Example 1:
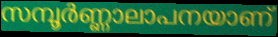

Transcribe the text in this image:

സമ്പൂർണ്ണാലാപനയാണ്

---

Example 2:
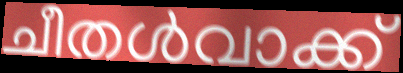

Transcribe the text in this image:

ചീതൾവാക്ക്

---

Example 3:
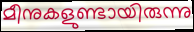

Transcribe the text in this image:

മീനുകളുണ്ടായിരുന്നു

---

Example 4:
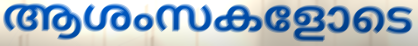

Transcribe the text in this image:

ആശംസകളോടെ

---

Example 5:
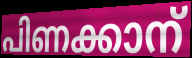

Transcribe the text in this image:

പിണക്കാന്